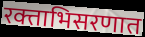
रक्ताभिसरणात